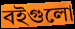
বইগুলো